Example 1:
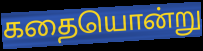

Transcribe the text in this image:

கதையொன்று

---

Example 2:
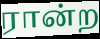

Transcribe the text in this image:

ரான்ற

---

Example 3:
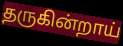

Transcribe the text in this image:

தருகின்றாய்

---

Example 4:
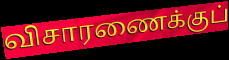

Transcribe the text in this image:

விசாரணைக்குப்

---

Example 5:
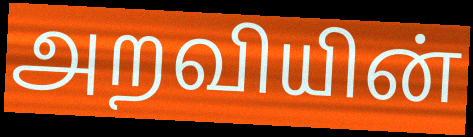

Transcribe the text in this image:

அறவியின்